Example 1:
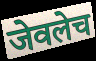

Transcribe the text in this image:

जेवलेच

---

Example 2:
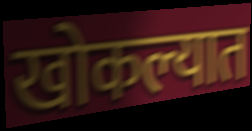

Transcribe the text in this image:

खोकल्यात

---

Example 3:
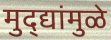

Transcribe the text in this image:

मुद्द्यांमुळे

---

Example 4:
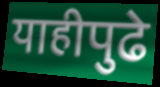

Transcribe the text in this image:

याहीपुढे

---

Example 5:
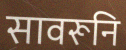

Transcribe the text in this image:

सावरूनि